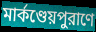
মার্কণ্ডেয়পুরাণে